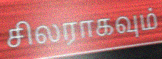
சிலராகவும்